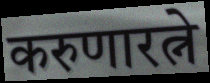
करुणारत्ने